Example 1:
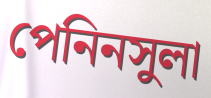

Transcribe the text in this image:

পেনিনসুলা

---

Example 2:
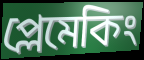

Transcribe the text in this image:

প্লেমেকিং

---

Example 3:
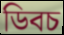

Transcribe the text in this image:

ডিবচ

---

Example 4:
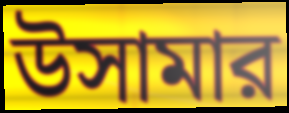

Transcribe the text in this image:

উসামার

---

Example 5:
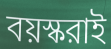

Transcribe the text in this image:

বয়স্করাই